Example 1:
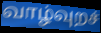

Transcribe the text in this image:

வாழ்வுறச்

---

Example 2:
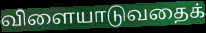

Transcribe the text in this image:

விளையாடுவதைக்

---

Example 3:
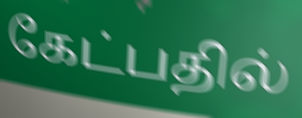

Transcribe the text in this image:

கேட்பதில்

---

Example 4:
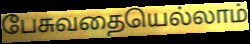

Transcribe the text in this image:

பேசுவதையெல்லாம்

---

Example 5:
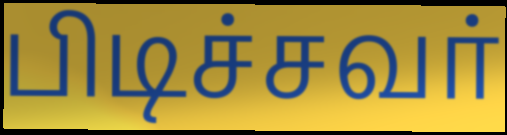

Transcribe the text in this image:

பிடிச்சவர்